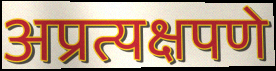
अप्रत्यक्षपणे